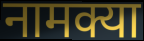
नामक्या